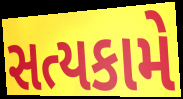
સત્યકામે